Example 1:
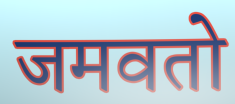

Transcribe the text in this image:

जमवतो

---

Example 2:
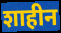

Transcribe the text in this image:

शाहीन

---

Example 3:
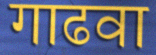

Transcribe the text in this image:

गाढवा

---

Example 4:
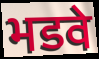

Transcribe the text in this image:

भडवे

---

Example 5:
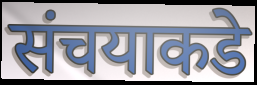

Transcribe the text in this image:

संचयाकडे